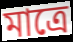
মাত্ৰে